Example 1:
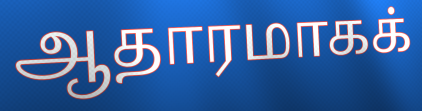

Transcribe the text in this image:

ஆதாரமாகக்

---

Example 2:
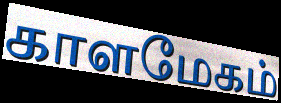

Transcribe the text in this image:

காளமேகம்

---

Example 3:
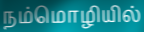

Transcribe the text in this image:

நம்மொழியில்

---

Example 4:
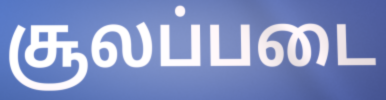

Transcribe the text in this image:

சூலப்படை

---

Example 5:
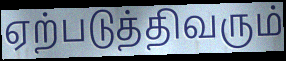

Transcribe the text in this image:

ஏற்படுத்திவரும்